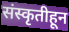
संस्कृतीहून